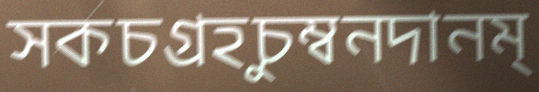
সকচগ্রহচুম্বনদানম্